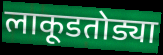
लाकूडतोड्या